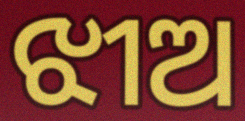
ଝୀଅ